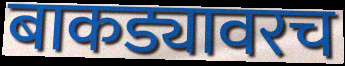
बाकड्यावरच